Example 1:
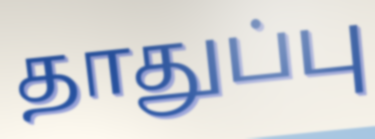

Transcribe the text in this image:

தாதுப்பு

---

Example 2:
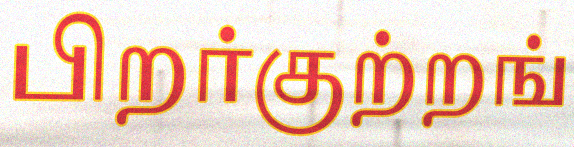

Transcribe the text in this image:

பிறர்குற்றங்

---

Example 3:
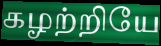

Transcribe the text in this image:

கழற்றியே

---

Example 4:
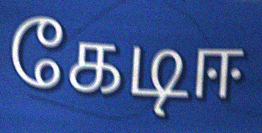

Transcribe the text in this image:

கேடிஈ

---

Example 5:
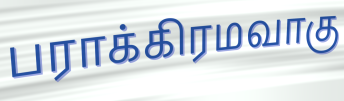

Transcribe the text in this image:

பராக்கிரமவாகு